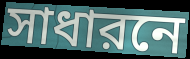
সাধারনে